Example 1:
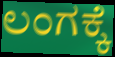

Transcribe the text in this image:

ಲಂಗಕ್ಕೆ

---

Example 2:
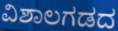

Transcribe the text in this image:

ವಿಶಾಲಗಡದ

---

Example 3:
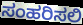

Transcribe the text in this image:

ಸಂಹರಿಸಲಿ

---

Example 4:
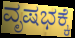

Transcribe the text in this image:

ವೃಷಭಕ್ಕೆ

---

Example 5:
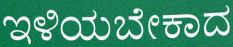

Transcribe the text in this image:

ಇಳಿಯಬೇಕಾದ